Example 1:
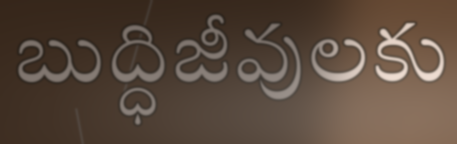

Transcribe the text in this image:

బుద్ధిజీవులకు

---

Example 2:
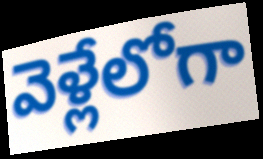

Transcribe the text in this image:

వెళ్లేలోగా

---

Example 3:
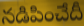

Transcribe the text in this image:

నడిపించేదీ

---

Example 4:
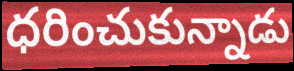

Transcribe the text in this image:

ధరించుకున్నాడు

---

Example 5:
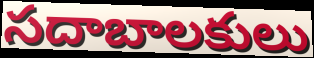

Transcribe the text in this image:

సదాబాలకులు